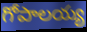
గోపాలయ్య